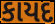
કાયદ